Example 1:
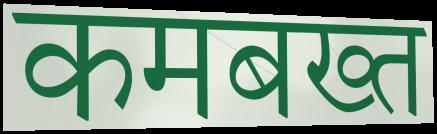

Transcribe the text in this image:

कमबख्त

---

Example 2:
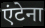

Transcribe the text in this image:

एंटेना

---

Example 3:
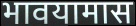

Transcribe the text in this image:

भावयामास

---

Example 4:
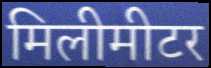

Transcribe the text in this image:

मिलीमीटर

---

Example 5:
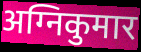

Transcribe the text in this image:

अग्निकुमार